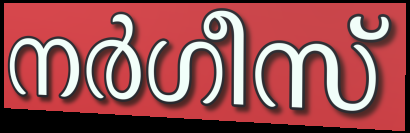
നർഗീസ്